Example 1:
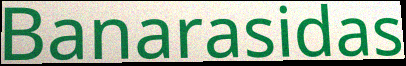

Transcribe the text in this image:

Banarasidas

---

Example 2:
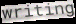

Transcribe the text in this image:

writing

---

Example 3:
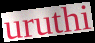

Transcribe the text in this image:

uruthi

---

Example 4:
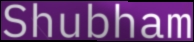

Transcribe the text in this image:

Shubham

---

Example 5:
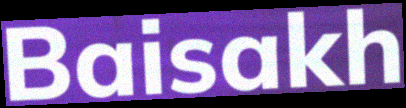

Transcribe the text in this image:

Baisakh